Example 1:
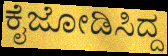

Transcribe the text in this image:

ಕೈಜೋಡಿಸಿದ್ದ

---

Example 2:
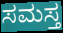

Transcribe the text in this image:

ಸಮಸ್ತ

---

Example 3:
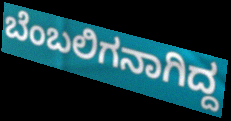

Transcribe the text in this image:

ಬೆಂಬಲಿಗನಾಗಿದ್ದ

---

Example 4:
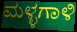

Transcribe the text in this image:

ಮಳ್ಳಗಾಳಿ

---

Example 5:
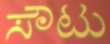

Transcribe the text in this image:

ಸೌಟು